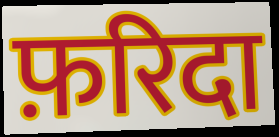
फ़रिदा